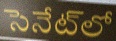
సెనేట్‌లో